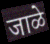
जाळे